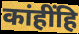
कांहींहि